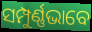
ସମ୍ପୁର୍ଣ୍ଣଭାବେ